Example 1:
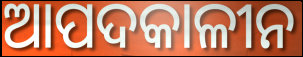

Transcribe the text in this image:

ଆପଦକାଳୀନ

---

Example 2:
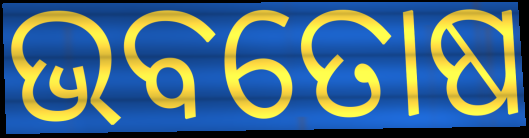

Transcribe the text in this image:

ଭବତୋଷ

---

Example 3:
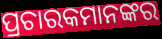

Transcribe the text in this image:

ପ୍ରଚାରକମାନଙ୍କର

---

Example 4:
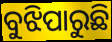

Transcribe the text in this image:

ବୁଝିପାରୁଛି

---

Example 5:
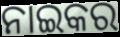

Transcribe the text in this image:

ନାଇକର